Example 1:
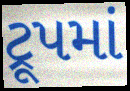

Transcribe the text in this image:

ટ્રૂપમાં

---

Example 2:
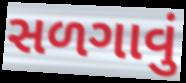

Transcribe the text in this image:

સળગાવું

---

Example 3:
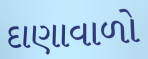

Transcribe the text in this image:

દાણાવાળો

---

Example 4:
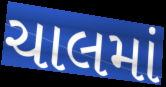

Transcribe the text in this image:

ચાલમાં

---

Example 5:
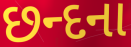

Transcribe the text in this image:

છન્દના